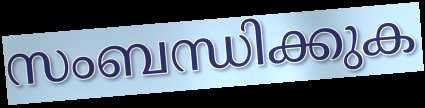
സംബന്ധിക്കുക